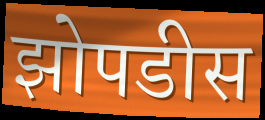
झोपडीस